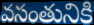
వసంతునికి